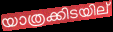
യാത്രക്കിടയില്